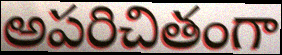
అపరిచితంగా